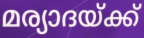
മര്യാദയ്ക്ക്